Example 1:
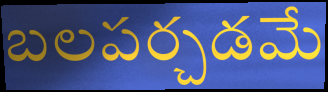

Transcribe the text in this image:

బలపర్చడమే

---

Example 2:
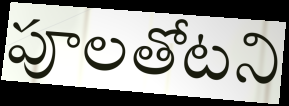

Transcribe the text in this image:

పూలతోటని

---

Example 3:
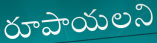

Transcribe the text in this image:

రూపాయలని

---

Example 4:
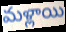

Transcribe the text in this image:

మళ్లాయి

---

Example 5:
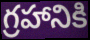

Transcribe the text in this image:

గ్రహానికి